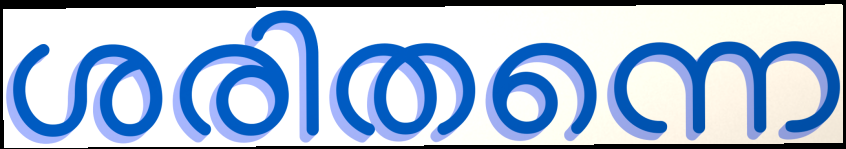
ശരിതന്നെ